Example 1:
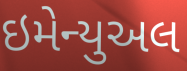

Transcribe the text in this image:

ઇમેન્યુઅલ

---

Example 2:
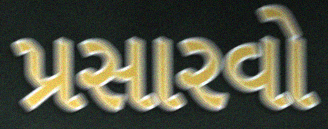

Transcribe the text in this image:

પ્રસારવો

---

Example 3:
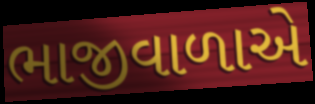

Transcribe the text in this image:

ભાજીવાળાએ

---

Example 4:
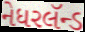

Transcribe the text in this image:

નેધરલૅન્ડ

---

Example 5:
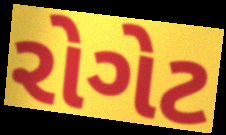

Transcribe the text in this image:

રોગેટ